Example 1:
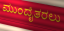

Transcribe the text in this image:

ಮುಂದೈತರಲು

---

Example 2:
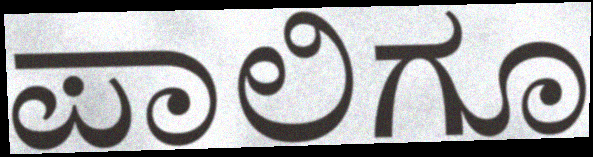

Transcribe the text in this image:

ಪಾಲಿಗೂ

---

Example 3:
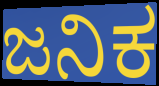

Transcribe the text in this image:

ಜನಿಕ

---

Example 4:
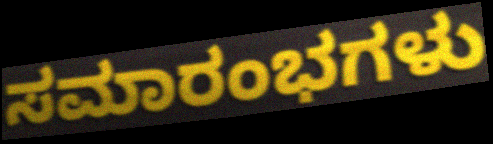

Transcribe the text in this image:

ಸಮಾರಂಭಗಳು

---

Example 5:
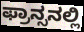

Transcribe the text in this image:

ಫ್ರಾನ್ಸನಲ್ಲಿ